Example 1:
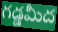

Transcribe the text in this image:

గడ్డమీద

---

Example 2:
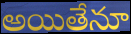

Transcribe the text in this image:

అయితేనూ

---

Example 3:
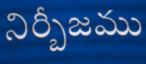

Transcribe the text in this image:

నిర్బీజము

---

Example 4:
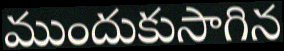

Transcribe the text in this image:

ముందుకుసాగిన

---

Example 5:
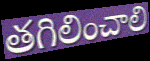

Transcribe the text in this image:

తగిలించాలి